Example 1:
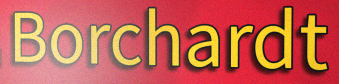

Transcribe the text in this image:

Borchardt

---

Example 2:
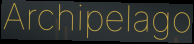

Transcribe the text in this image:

Archipelago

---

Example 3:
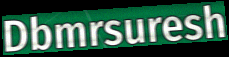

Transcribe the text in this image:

Dbmrsuresh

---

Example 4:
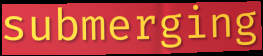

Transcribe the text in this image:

submerging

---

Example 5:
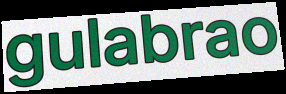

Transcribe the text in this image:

gulabrao